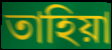
তাহিয়া